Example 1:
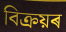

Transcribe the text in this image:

বিক্ৰয়ৰ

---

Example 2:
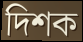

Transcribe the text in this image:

দিশক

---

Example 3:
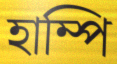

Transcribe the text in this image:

হাম্পি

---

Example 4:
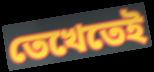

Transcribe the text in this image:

তেখেতেই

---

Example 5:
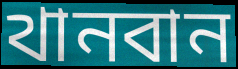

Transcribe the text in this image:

থানবান